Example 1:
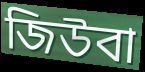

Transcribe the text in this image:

জিউবা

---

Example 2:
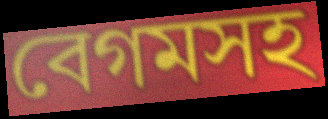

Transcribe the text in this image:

বেগমসহ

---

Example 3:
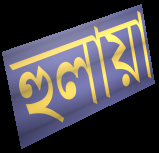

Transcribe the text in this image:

হুলায়া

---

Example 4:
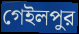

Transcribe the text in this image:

গেইলপুর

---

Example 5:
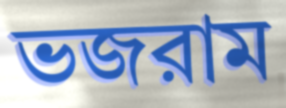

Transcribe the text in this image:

ভজরাম